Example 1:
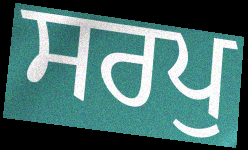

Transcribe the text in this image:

ਸਰਪੁ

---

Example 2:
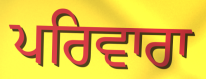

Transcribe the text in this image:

ਪਰਿਵਾਰਾ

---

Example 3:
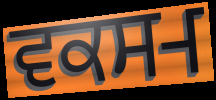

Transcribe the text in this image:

ਵਕਸ੍ਮ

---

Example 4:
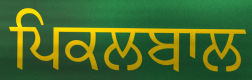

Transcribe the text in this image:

ਪਿਕਲਬਾਲ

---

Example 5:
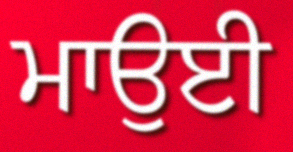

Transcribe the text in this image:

ਮਾਉਈ